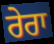
ਰੇਰਾ